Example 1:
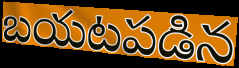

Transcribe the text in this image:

బయటపడిన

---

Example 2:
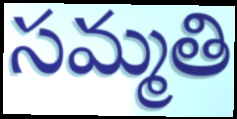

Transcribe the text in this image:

సమ్మతి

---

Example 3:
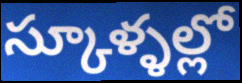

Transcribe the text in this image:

స్కూళ్ళల్లో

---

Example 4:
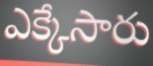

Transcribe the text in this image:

ఎక్కేసారు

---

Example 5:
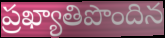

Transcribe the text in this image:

ప్రఖ్యాతిపొందిన